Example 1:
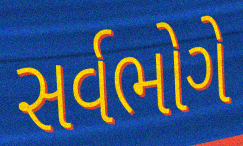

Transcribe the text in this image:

સર્વભોગે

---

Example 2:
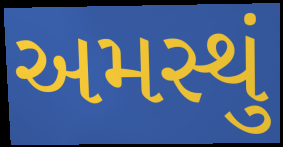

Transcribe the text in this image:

અમસ્થું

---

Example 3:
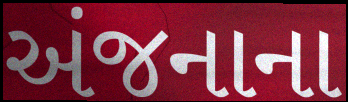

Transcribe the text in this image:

અંજનાના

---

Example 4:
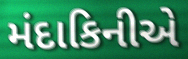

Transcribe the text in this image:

મંદાકિનીએ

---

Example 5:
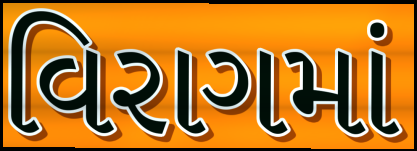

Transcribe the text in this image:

વિરાગમાં